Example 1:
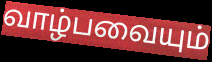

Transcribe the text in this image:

வாழ்பவையும்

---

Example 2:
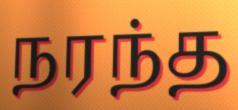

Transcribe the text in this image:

நரந்த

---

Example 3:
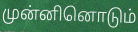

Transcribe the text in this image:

முன்னினொடும்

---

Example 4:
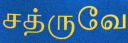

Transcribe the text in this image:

சத்ருவே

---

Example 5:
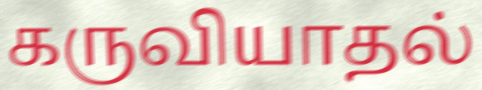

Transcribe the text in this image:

கருவியாதல்